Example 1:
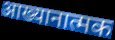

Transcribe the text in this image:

आख्यानात्मक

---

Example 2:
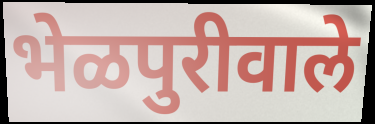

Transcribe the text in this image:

भेळपुरीवाले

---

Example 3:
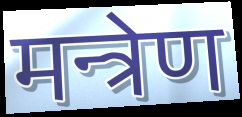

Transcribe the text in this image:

मन्त्रेण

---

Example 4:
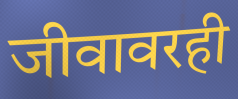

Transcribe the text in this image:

जीवावरही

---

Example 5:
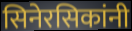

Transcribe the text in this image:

सिनेरसिकांनी